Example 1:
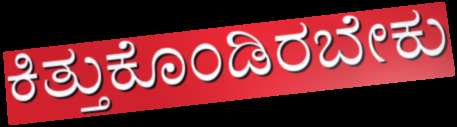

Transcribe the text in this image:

ಕಿತ್ತುಕೊಂಡಿರಬೇಕು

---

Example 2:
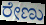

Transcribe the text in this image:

ರೇಣು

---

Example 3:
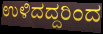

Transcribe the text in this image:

ಉಳಿದದ್ದರಿಂದ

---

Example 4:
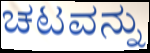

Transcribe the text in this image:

ಚಟವನ್ನು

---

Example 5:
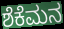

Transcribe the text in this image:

ಶೆಕೆಮನ